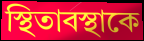
স্থিতাবস্থাকে